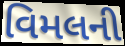
વિમલની